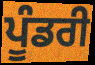
ਪੂੰਡਰੀ